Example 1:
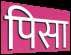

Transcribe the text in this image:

पिसा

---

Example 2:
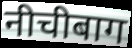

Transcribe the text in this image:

नीचीबाग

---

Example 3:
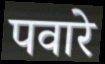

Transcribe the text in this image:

पवारे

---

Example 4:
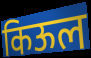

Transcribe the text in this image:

किऊल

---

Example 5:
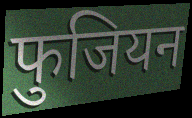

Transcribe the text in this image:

फुजियन